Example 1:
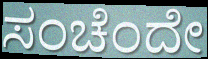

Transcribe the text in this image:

ಸಂಚೆಂದೇ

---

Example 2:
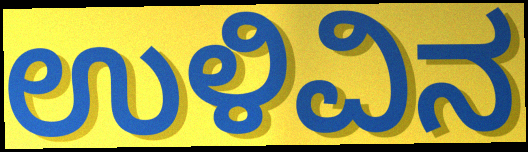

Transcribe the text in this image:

ಉಳಿವಿನ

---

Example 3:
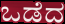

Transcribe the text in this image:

ಒಡೆದ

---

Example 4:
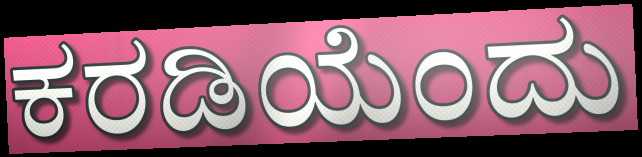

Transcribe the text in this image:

ಕರಡಿಯೆಂದು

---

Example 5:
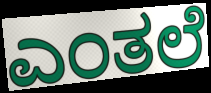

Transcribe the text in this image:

ಎಂತಲೆ